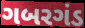
ગબરગંડ